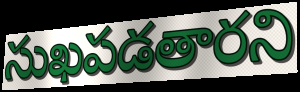
సుఖపడతారని